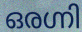
ഒരഗ്നി